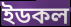
ইডকল